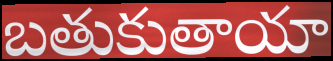
బతుకుతాయా